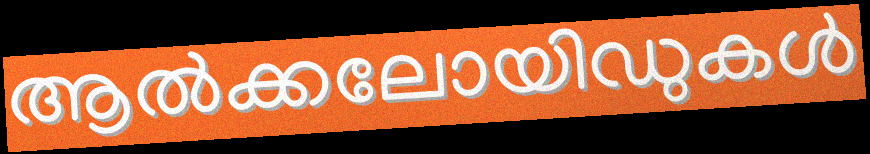
ആൽക്കലോയിഡുകൾ